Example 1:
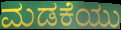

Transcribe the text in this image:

ಮಡಕೆಯು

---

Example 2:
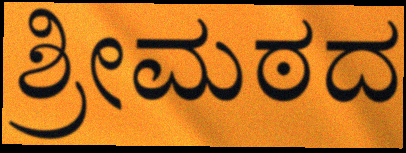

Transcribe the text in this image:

ಶ್ರೀಮಠದ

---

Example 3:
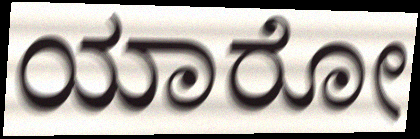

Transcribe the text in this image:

ಯಾರೋ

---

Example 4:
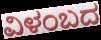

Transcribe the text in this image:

ವಿಳಂಬದ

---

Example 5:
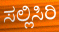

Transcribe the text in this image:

ಸಲ್ಲಿಸಿರಿ